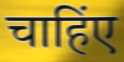
चाहिंए